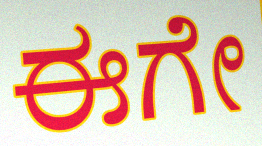
ಈಗೇ